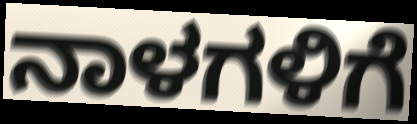
ನಾಳಗಳಿಗೆ